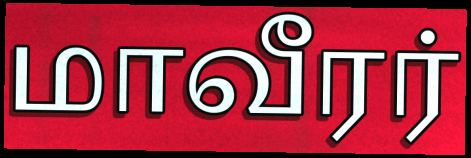
மாவீரர்